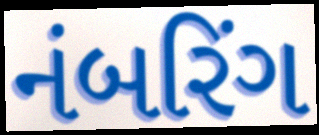
નંબરિંગ